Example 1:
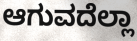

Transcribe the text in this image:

ಆಗುವದೆಲ್ಲಾ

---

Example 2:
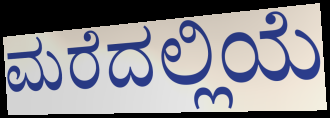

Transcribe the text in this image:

ಮರೆದಲ್ಲಿಯೆ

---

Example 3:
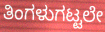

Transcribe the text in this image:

ತಿಂಗಳುಗಟ್ಟಲೇ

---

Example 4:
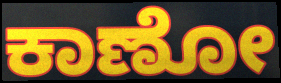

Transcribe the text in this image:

ಕಾಣೋ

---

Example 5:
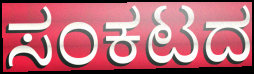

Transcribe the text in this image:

ಸಂಕಟದ